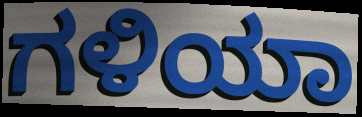
ಗಳಿಯಾ